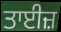
ਤਾਈਜ਼